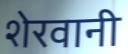
शेरवानी